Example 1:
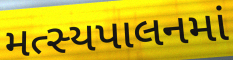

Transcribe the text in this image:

મત્સ્યપાલનમાં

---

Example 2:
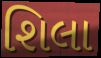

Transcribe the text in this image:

શિલા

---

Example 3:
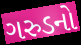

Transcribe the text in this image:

ગરુડનો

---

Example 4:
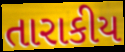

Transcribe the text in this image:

તારાકીય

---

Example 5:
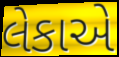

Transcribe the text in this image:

લેકાએ